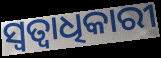
ସ୍ଵତ୍ୱାଧିକାରୀ